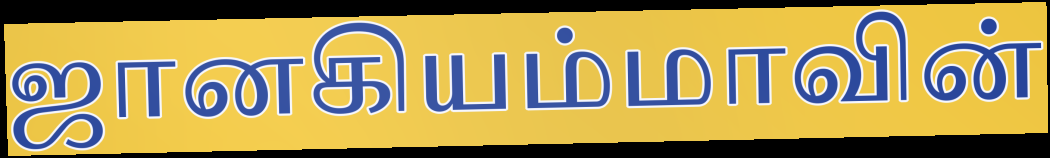
ஜானகியம்மாவின்